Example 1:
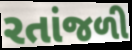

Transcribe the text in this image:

રતાંજળી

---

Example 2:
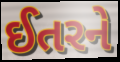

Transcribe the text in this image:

ઈતરને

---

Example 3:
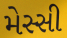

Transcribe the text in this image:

મેસ્સી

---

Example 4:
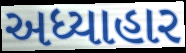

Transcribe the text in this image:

અધ્યાહાર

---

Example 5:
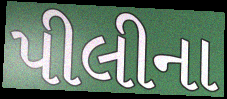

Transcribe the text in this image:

પીલીના